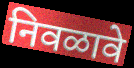
निवळावे